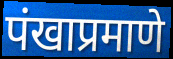
पंखाप्रमाणे